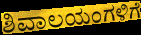
ಶಿವಾಲಯಂಗಳಿಗೆ